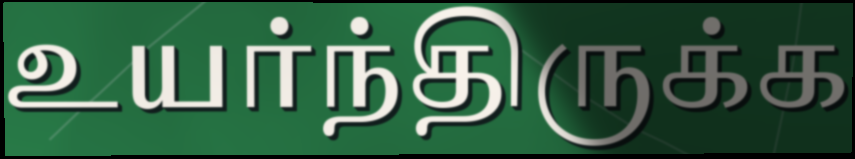
உயர்ந்திருக்க